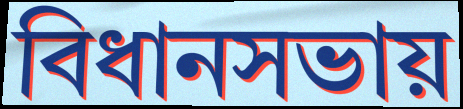
বিধানসভায়